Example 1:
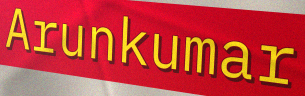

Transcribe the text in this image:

Arunkumar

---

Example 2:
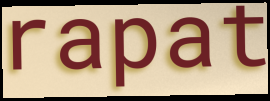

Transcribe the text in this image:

rapat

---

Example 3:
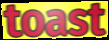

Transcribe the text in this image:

toast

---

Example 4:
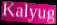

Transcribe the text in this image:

Kalyug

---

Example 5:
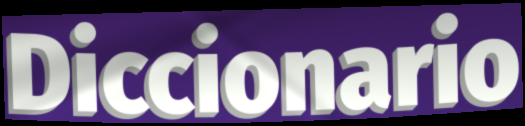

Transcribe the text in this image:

Diccionario